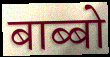
बाब्बो